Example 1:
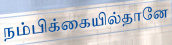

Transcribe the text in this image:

நம்பிக்கையில்தானே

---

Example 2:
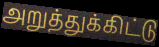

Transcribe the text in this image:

அறுத்துக்கிட்டு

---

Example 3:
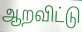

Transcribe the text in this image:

ஆறவிட்டு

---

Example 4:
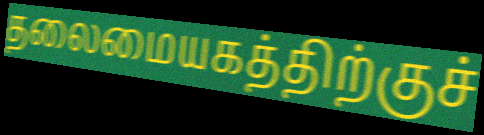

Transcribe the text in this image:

தலைமையகத்திற்குச்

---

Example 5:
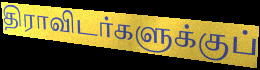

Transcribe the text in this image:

திராவிடர்களுக்குப்